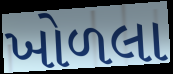
ખોળલા